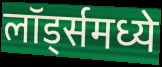
लॉर्ड्समध्ये